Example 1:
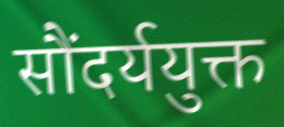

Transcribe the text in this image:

सौंदर्ययुक्त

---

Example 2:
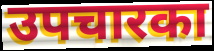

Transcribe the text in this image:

उपचारका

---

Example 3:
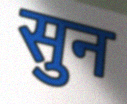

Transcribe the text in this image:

सुन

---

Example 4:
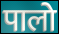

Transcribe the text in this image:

पालो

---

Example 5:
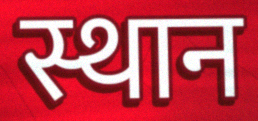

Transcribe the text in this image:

स्थान